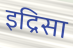
इद्रिसा